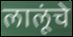
लालूंचे